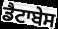
ਡੈਟਾਬੇਸ